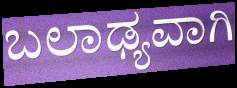
ಬಲಾಢ್ಯವಾಗಿ